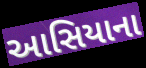
આસિયાના